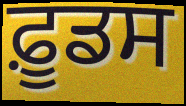
ਫ਼ੂਡਸ